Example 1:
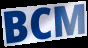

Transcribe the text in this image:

BCM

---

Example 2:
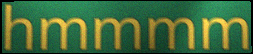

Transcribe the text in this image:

hmmmm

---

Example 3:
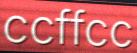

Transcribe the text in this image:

ccffcc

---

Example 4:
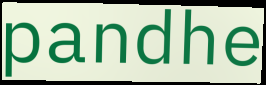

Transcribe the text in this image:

pandhe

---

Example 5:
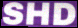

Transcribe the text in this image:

SHD